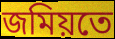
জমিয়তে